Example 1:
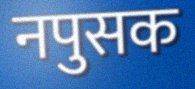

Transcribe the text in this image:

नपुसक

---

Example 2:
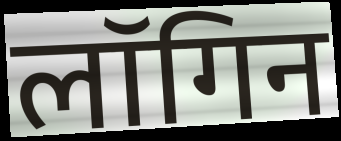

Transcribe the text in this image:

लॉगिन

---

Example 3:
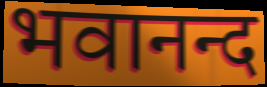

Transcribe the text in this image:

भवानन्द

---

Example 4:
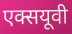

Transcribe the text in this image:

एक्सयूवी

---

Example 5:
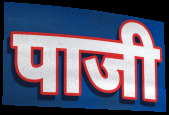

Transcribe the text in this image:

पाजी